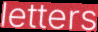
letters